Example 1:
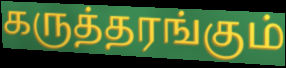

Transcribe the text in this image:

கருத்தரங்கும்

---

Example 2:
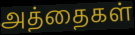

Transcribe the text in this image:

அத்தைகள்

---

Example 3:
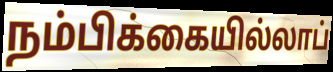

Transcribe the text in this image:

நம்பிக்கையில்லாப்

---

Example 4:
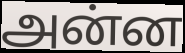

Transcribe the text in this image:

அன்ன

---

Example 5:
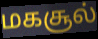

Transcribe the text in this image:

மகசூல்